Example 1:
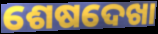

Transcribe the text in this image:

ଶେଷଦେଖା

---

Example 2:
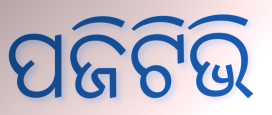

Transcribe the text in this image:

ପଜିଟିଭି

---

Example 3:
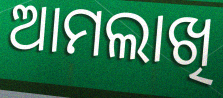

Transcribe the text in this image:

ଆମଲାଖି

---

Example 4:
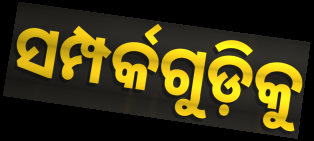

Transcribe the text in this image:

ସମ୍ପର୍କଗୁଡ଼ିକୁ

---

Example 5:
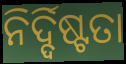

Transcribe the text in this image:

ନିର୍ଦ୍ଦିଷ୍ଟତା